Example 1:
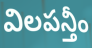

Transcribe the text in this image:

విలపన్తీం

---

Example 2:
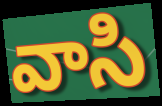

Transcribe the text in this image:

వాసి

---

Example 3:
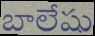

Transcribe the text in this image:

బాలేషు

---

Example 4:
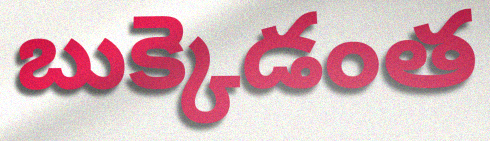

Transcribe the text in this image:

బుక్కెడంత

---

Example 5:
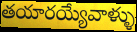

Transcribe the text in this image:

తయారయ్యేవాళ్ళు